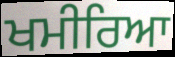
ਖਮੀਰਿਆ